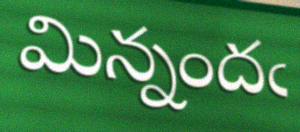
మిన్నందఁ